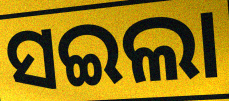
ସଇଲା